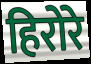
हिरोरे